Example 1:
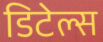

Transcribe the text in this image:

डिटेल्स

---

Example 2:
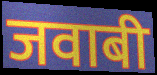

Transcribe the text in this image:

जवाबी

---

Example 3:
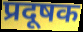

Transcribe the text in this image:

प्रदूषक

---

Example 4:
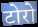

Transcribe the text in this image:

टोरो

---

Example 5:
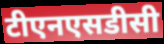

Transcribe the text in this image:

टीएनएसडीसी